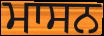
ਮਾਸਨ